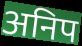
अनिप